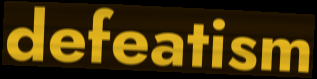
defeatism